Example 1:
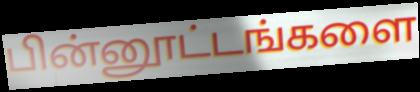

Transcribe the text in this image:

பின்னூட்டங்களை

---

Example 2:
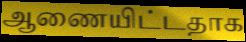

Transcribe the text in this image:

ஆணையிட்டதாக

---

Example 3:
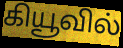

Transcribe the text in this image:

கியூவில்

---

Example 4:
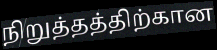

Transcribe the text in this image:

நிறுத்தத்திற்கான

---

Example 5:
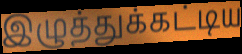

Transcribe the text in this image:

இழுத்துக்கட்டிய